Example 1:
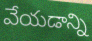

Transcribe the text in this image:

వేయడాన్ని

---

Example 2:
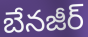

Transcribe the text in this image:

బేనజీర్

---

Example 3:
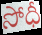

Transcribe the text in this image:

సోధీ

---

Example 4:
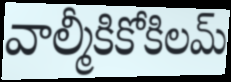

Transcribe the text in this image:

వాల్మీకికోకిలమ్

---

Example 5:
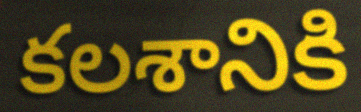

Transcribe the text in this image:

కలశానికి